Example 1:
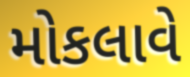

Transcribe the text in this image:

મોકલાવે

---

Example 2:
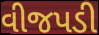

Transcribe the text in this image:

વીજપડી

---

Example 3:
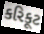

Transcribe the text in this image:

કરિકૂટ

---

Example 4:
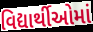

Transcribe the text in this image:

વિદ્યાર્થીઓમાં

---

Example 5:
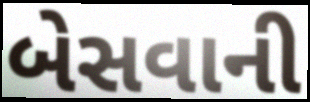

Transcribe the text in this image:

બેસવાની